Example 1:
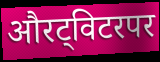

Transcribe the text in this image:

औरट्विटरपर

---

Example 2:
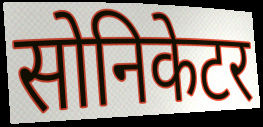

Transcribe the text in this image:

सोनिकेटर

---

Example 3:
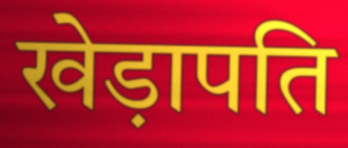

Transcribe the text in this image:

खेड़ापति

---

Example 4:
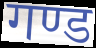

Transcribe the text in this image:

गण्ड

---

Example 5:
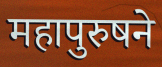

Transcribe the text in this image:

महापुरुषने